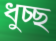
ধুচ্ছ